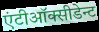
एंटीऑक्सीडेन्ट